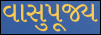
વાસુપૂજ્ય